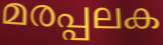
മരപ്പലക